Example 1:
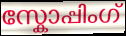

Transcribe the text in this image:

സ്കോപ്പിംഗ്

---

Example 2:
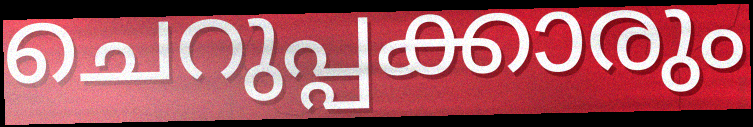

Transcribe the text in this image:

ചെറുപ്പക്കാരും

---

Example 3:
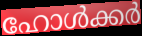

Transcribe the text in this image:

ഹോൾക്കർ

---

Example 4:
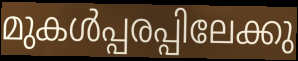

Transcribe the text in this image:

മുകൾപ്പരപ്പിലേക്കു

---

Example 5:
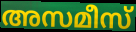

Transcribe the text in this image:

അസമീസ്